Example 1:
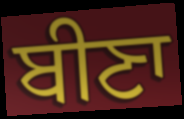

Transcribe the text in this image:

ਬੀਣਾ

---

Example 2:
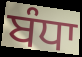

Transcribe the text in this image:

ਬੰਧਾ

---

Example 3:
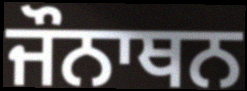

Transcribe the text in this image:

ਜੌਨਾਥਨ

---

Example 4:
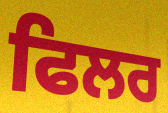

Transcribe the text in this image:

ਫਿਲਰ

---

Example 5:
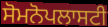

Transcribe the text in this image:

ਸੋਮਨੋਪਲਾਸਟੀ